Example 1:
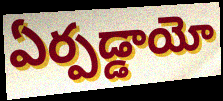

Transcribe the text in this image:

ఏర్పడ్డాయో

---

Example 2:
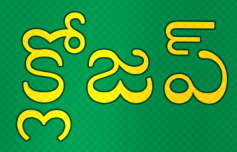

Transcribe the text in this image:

క్లోజప్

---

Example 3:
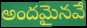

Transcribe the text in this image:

అందమైనవే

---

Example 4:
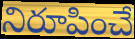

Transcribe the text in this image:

నిరూపించే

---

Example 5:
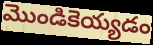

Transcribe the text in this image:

మొండికెయ్యడం